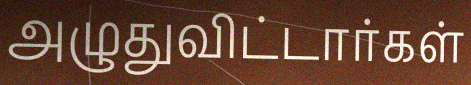
அழுதுவிட்டார்கள்